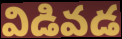
విడివడ